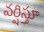
వర్షిస్తూ